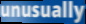
unusually